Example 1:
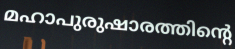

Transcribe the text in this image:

മഹാപുരുഷാരത്തിന്റെ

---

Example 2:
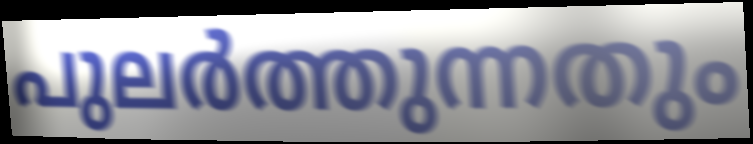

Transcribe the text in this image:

പുലർത്തുന്നതും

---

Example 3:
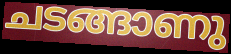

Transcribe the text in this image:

ചടങ്ങാണു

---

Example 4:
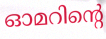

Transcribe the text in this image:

ഓമറിന്റെ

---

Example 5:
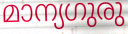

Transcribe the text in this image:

മാന്യഗുരു